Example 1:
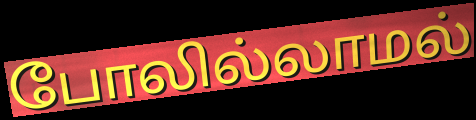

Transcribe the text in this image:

போலில்லாமல்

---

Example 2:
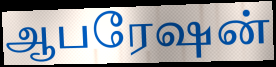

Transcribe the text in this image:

ஆபரேஷன்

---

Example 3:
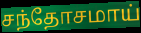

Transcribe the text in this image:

சந்தோசமாய்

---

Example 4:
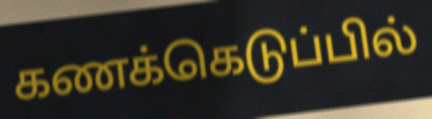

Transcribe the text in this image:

கணக்கெடுப்பில்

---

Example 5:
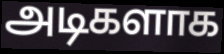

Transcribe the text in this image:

அடிகளாக